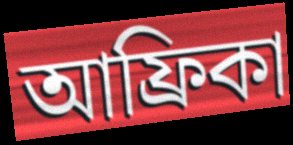
আফ্ৰিকা